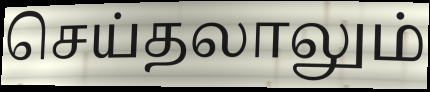
செய்தலாலும்